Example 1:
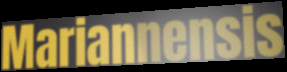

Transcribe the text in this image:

Mariannensis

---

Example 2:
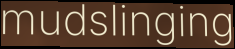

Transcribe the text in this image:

mudslinging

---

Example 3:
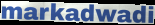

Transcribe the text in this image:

markadwadi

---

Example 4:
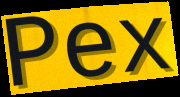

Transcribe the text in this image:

Pex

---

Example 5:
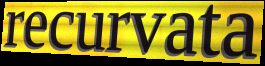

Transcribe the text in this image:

recurvata